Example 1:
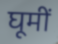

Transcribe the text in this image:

घूमीं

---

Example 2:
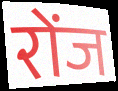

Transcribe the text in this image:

रोंज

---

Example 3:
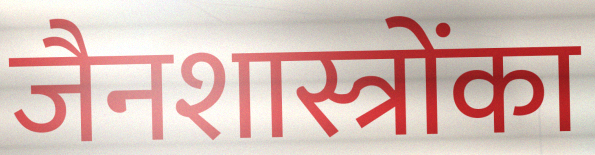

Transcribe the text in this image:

जैनशास्त्रोंका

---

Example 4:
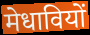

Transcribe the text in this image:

मेधावियों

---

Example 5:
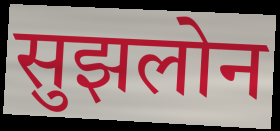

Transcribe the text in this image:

सुझलोन